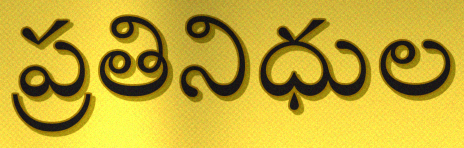
ప్రతినిధుల